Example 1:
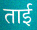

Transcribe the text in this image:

ताई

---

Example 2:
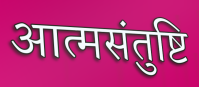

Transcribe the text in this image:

आत्मसंतुष्टि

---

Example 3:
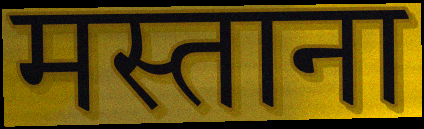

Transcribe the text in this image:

मस्ताना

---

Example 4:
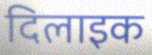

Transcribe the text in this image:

दिलाइक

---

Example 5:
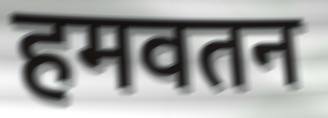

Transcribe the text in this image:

हमवतन